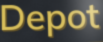
Depot